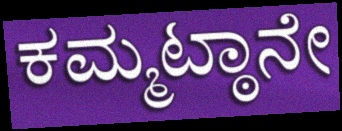
ಕಮ್ಮಟ್ಠಾನೇ